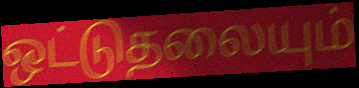
ஒட்டுதலையும்